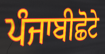
ਪੰਜਾਬੀਛੋਟੇ